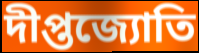
দীপ্তজ্যোতি